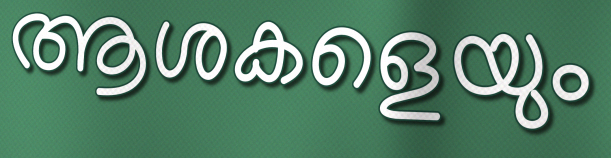
ആശകളെയും